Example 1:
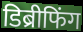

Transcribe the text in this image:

डिब्रीफिंग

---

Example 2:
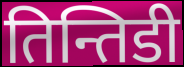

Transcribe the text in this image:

तिन्तिडी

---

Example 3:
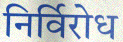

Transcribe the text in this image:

निर्विरोध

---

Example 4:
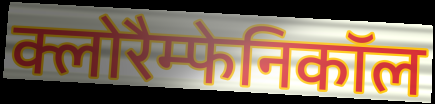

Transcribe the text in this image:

क्लोरैम्फेनिकॉल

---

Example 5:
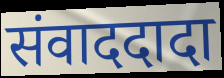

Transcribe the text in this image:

संवाददादा